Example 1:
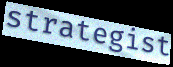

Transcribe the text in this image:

strategist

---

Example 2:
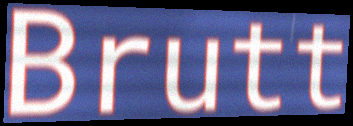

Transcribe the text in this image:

Brutt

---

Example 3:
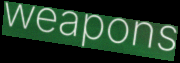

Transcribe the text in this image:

weapons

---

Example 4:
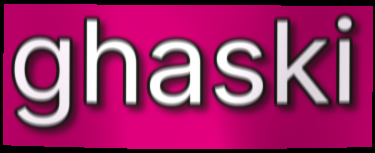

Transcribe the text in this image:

ghaski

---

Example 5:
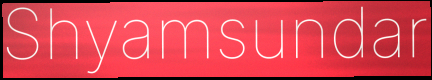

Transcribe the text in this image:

Shyamsundar